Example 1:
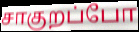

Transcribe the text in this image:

சாகுறப்போ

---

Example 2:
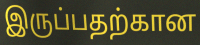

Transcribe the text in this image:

இருப்பதற்கான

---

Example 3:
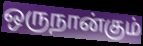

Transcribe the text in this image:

ஒருநான்கும்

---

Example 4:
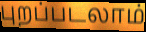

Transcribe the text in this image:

புறப்படலாம்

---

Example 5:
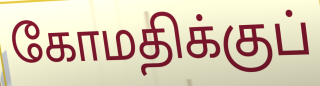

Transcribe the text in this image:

கோமதிக்குப்